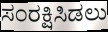
ಸಂರಕ್ಷಿಸಿಡಲು